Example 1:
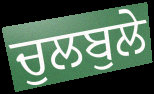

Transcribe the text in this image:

ਚੁਲਬੁਲੇ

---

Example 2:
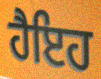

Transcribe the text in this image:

ਹੈਇਹ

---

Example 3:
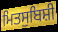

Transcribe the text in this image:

ਮਿਤਸੁਬਿਸ਼ੀ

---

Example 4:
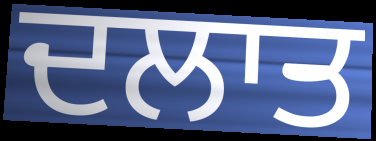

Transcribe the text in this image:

ਦਲਾਤ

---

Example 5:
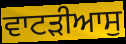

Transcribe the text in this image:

ਵਾਟੜੀਆਸੁ